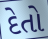
દેતો